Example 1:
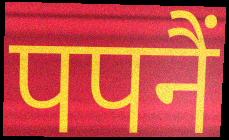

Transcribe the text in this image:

पपनैं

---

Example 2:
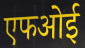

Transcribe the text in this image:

एफओई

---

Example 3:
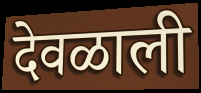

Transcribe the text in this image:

देवळाली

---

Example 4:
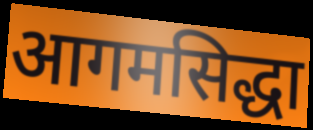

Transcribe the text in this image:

आगमसिद्धा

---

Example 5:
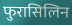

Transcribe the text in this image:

फुरासिलिन